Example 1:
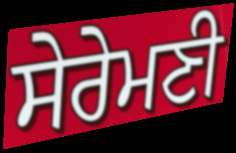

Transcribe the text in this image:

ਸੇਰੇਮਣੀ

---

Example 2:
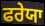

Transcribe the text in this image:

ਫਰੇਯਾ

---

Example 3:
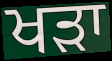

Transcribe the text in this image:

ਖਡ਼ਾ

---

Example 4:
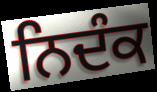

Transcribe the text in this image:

ਨਿਦੰਕ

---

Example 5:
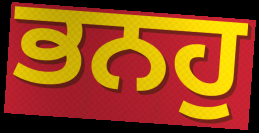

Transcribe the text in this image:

ਭਨਹੁ